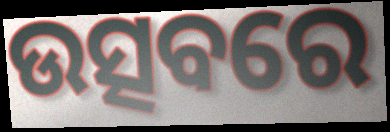
ଉତ୍ସବରେ